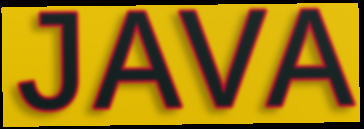
JAVA